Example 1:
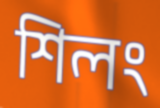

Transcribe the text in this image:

শিলং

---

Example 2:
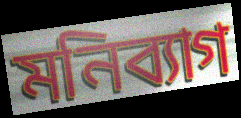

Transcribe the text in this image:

মনিব্যাগ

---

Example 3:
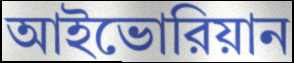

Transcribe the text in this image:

আইভোরিয়ান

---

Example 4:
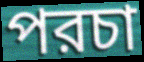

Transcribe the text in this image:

পরচা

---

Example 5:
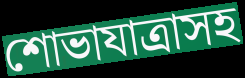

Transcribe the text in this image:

শোভাযাত্রাসহ